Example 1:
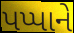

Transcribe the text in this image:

પપ્પાને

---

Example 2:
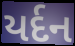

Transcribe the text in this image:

યર્દન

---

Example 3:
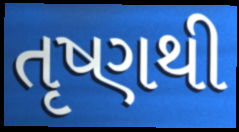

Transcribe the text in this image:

તૃષ્ણથી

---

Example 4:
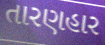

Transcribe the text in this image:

તારણહાર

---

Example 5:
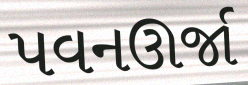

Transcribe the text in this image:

પવનઊર્જા